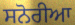
ਸਨੋਰੀਆ